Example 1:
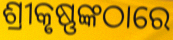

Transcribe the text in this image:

ଶ୍ରୀକୃଷ୍ଣଙ୍କଠାରେ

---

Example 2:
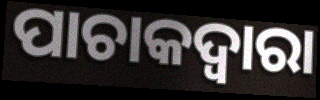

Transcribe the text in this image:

ପାଚାକଦ୍ଵାରା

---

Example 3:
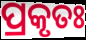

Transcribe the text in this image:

ପ୍ରକୃତଃ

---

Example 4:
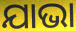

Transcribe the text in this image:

ଯାଭା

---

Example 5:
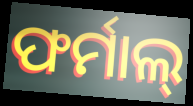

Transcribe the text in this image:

ଫର୍ମାଲ୍